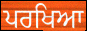
ਪਰਖਿਆ